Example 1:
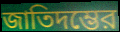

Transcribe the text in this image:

জাতিদম্ভের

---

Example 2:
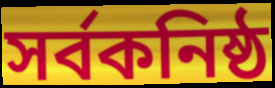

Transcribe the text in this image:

সর্বকনিষ্ঠ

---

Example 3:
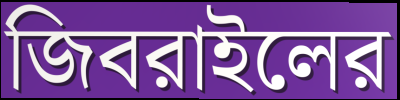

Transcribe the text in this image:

জিবরাইলের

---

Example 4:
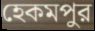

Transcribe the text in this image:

হেকমপুর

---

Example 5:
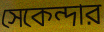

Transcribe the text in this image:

সেকেন্দার